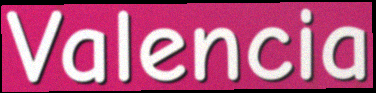
Valencia